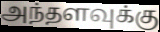
அந்தளவுக்கு